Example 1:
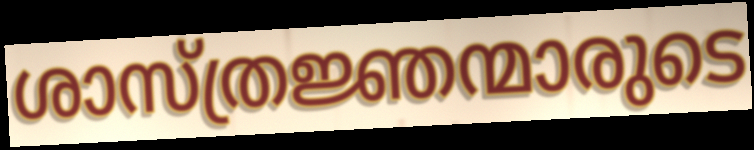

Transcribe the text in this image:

ശാസ്ത്രജ്ഞന്മാരുടെ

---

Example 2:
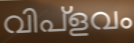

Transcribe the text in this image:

വിപ്ളവം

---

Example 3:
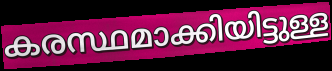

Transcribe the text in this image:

കരസ്ഥമാക്കിയിട്ടുള്ള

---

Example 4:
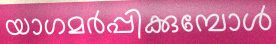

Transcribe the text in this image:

യാഗമർപ്പിക്കുമ്പോൾ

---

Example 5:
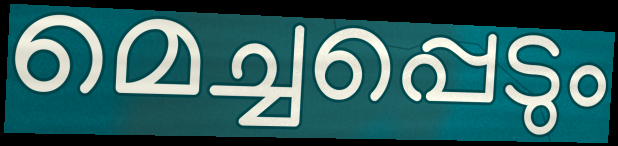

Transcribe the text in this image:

മെച്ചപ്പെടും